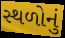
સ્થળોનું